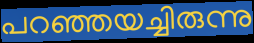
പറഞ്ഞയച്ചിരുന്നു